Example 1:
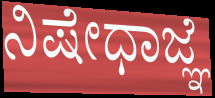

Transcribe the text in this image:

ನಿಷೇಧಾಜ್ಞೆ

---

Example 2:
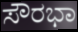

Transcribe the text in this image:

ಸೌರಭಾ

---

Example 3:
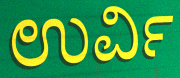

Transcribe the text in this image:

ಉರ್ವಿ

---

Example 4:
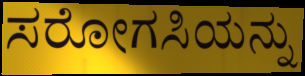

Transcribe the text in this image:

ಸರೋಗಸಿಯನ್ನು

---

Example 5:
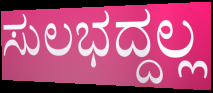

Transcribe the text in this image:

ಸುಲಭದ್ದಲ್ಲ